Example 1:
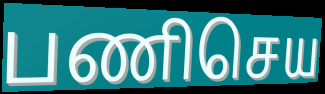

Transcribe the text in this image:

பணிசெய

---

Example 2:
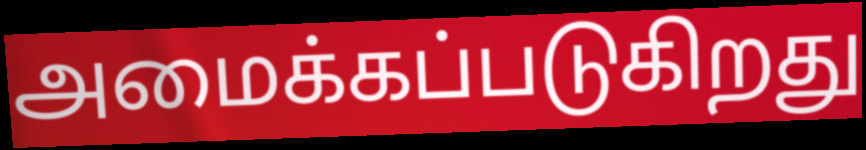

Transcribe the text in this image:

அமைக்கப்படுகிறது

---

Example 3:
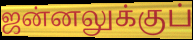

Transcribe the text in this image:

ஜன்னலுக்குப்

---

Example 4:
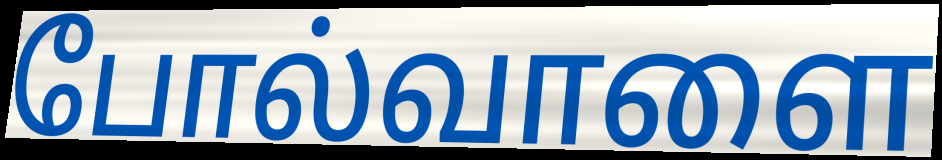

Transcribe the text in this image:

போல்வாளை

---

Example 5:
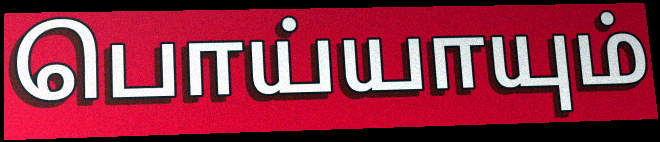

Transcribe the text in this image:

பொய்யாயும்